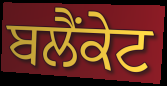
ਬਲੈਂਕੇਟ